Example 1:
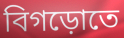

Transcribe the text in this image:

বিগড়োতে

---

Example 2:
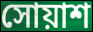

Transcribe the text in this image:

সোয়াশ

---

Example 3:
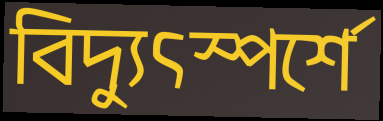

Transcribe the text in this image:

বিদ্যুৎস্পর্শে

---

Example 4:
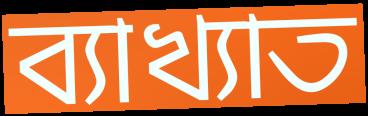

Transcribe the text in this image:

ব্যাখ্যাত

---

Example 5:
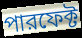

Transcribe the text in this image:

পারফেক্ট